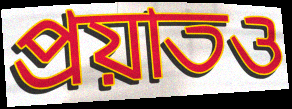
প্রয়াতও